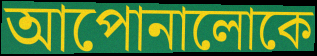
আপোনালোকে